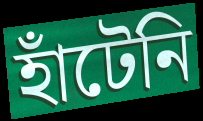
হাঁটেনি